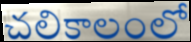
చలికాలంలో